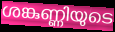
ശങ്കുണ്ണിയുടെ